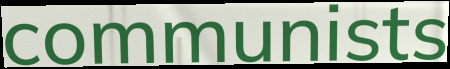
communists